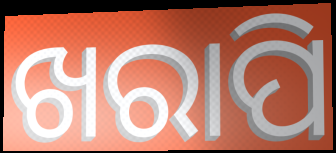
ଖରାପି